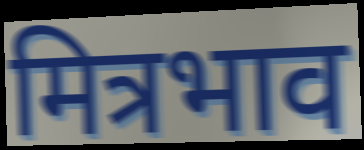
मित्रभाव